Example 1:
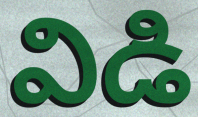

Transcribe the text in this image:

విడి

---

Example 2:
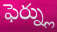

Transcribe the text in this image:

ఫెర్న్లు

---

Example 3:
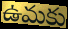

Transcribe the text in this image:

ఉమకు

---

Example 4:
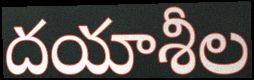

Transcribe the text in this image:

దయాశీల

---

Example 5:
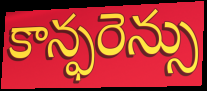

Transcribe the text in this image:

కాన్ఫరెన్సు